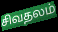
சிவதலம்